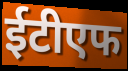
ईटीएफ